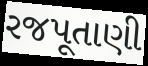
રજપૂતાણી